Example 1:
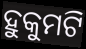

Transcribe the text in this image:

ହୁକୁମଟି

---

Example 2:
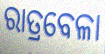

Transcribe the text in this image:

ରାତ୍ରବେଳା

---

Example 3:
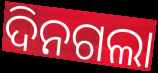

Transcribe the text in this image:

ଦିନଗଲା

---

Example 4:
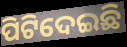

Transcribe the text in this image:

ପିଟିଦେଇଛି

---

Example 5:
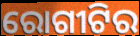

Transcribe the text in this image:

ରୋଗୀଟିର